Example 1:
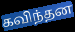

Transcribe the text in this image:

கவிந்தன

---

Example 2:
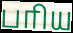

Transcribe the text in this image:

பரிய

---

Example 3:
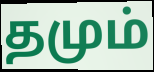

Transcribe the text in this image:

தமும்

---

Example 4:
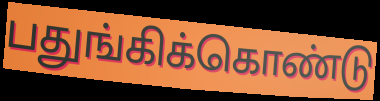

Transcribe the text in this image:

பதுங்கிக்கொண்டு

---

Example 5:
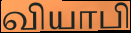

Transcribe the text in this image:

வியாபி